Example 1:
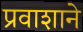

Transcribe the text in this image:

प्रवाशाने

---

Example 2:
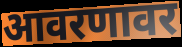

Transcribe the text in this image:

आवरणावर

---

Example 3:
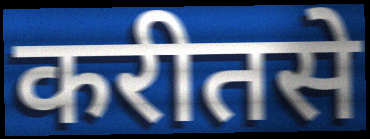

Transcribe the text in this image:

करीतसे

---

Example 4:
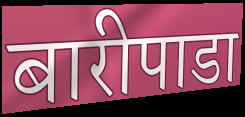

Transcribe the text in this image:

बारीपाडा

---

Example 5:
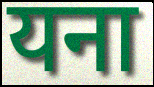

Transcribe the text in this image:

यना